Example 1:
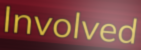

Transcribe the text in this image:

Involved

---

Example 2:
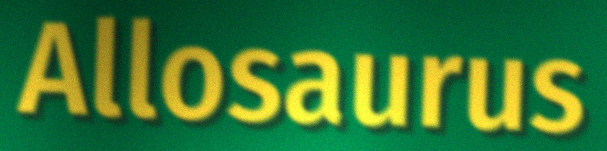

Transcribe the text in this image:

Allosaurus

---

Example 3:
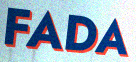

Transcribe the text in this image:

FADA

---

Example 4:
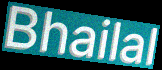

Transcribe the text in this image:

Bhailal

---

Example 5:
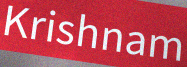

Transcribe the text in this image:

Krishnam